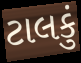
ટાલકું